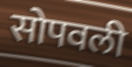
सोपवली